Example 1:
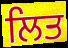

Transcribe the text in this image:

ਲਿਤ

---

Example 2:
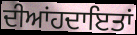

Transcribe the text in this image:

ਦੀਆਂਹਦਾਇਤਾਂ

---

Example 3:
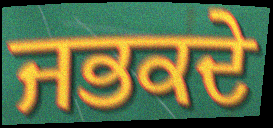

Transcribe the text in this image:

ਜਭਕਦੇ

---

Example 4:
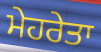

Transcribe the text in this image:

ਮੇਹਰੇਤਾ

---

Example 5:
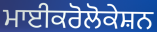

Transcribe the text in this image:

ਮਾਈਕਰੋਲੋਕੇਸ਼ਨ